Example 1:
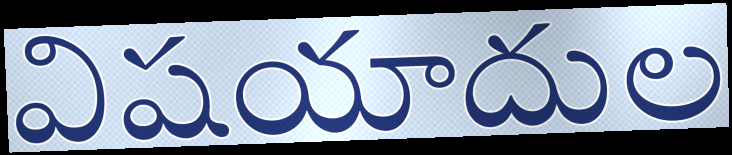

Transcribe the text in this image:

విషయాదుల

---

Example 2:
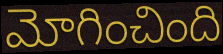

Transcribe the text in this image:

మోగించింది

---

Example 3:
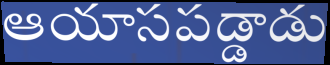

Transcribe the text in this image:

ఆయాసపడ్డాడు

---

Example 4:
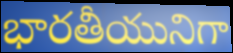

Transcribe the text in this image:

భారతీయునిగా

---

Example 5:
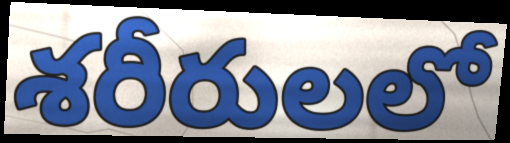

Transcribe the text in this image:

శరీరులలో